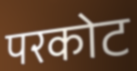
परकोट